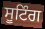
ਸੂਟਿੰਗ